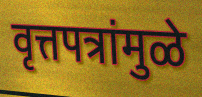
वृत्तपत्रांमुळे